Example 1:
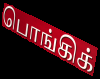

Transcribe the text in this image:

பொங்கிக்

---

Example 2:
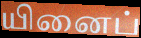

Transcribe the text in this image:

யினைப்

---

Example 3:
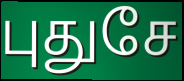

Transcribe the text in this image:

புதுசே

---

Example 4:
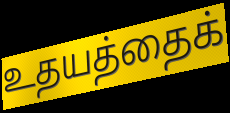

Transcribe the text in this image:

உதயத்தைக்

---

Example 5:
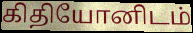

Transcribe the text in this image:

கிதியோனிடம்